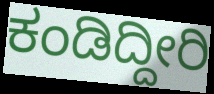
ಕಂಡಿದ್ದೀರಿ